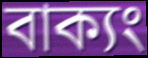
বাক্যং